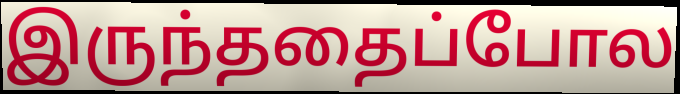
இருந்ததைப்போல